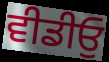
ਵੀਡੀਓੁ